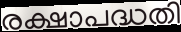
രക്ഷാപദ്ധതി